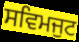
ਸਵਿਮਜੁਟ